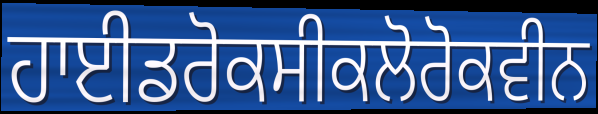
ਹਾਈਡਰੋਕਸੀਕਲੋਰੋਕਵੀਨ